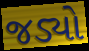
જડ્યો